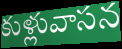
కుళ్లువాసన